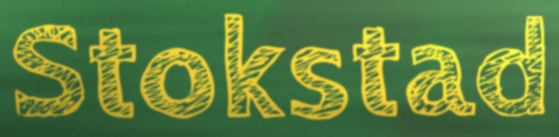
Stokstad